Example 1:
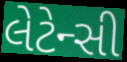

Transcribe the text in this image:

લેટેન્સી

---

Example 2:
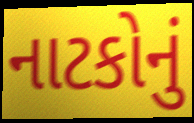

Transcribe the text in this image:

નાટકોનું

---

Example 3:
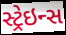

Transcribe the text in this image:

સ્ટ્રેઇન્સ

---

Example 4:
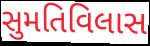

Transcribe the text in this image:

સુમતિવિલાસ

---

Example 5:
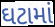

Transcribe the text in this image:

ઘટામાં